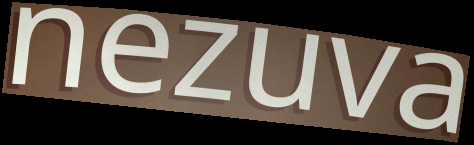
nezuva